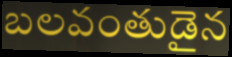
బలవంతుడైన